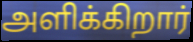
அளிக்கிறார்